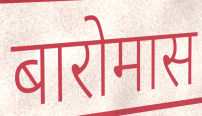
बारोमास